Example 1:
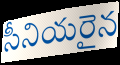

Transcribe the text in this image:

సీనియరైన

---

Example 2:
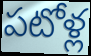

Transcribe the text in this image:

పటోళ్ల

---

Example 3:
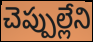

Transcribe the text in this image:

చెప్పుల్లేని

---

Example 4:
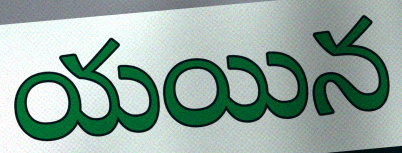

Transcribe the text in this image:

యయిన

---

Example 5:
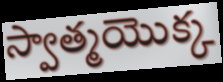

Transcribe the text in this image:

స్వాత్మయొక్క